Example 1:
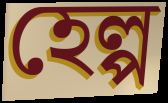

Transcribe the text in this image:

হেল্প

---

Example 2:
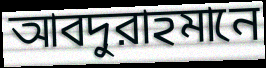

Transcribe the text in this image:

আবদুরাহমানে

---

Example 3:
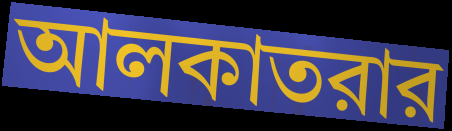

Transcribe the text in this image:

আলকাতরার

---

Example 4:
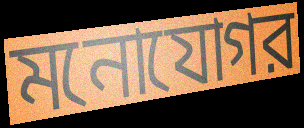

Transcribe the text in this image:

মনোযোগর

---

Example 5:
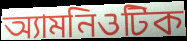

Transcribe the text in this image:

অ্যামনিওটিক